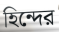
হিন্দের